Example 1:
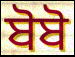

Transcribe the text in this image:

ਬੋਬੋ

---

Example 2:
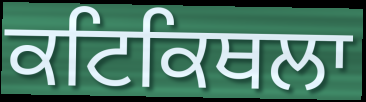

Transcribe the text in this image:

ਕਟਿਕਿਥਲਾ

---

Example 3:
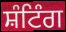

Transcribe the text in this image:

ਸ਼ੰਟਿੰਗ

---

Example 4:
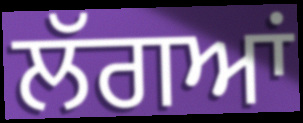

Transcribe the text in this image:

ਲੱਗਆਂ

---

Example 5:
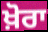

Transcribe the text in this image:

ਖ਼ੋਰਾ